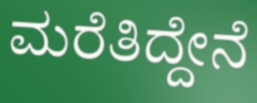
ಮರೆತಿದ್ದೇನೆ